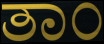
ತಾಂ